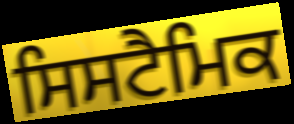
ਸਿਸਟੈਮਿਕ